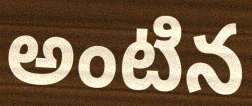
అంటిన